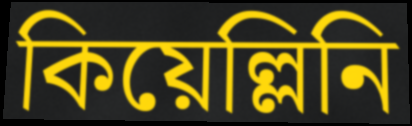
কিয়েল্লিনি